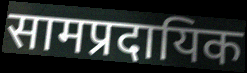
सामप्रदायिक